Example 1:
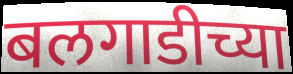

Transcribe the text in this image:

बलगाडीच्या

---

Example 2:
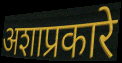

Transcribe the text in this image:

अशाप्रकारे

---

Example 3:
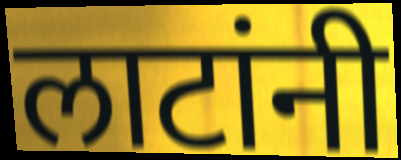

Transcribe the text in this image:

लाटांनी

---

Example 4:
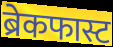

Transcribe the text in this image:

ब्रेकफास्ट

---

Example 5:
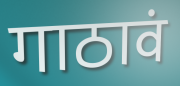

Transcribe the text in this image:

गाठावं